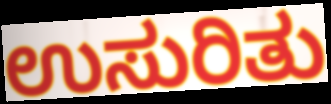
ಉಸುರಿತು